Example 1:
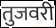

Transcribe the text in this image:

तुजवरी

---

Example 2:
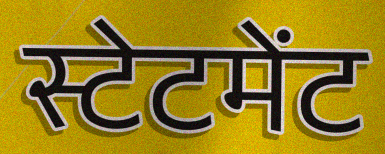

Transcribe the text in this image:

स्टेटमेंट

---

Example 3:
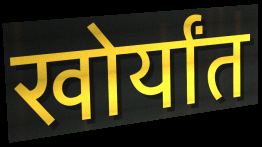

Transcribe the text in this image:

खोर्यांत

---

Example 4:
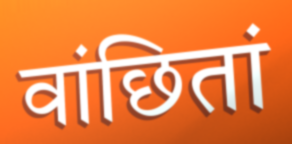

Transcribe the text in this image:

वांछितां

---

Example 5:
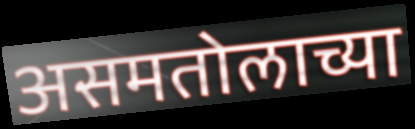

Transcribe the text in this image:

असमतोलाच्या